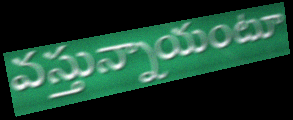
వస్తున్నాయంటూ